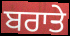
ਬਰਾਤੇ